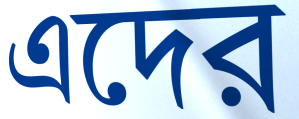
এদের